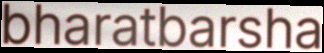
bharatbarsha